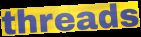
threads